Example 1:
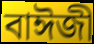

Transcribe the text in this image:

বাঈজী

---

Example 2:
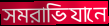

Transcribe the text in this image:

সমরাভিযানে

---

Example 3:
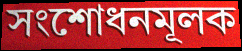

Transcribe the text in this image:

সংশোধনমূলক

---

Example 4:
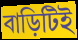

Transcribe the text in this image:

বাড়িটিই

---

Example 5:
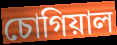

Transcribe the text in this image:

চোগিয়াল